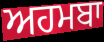
ਅਹਮਬਾ